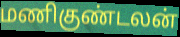
மணிகுண்டலன்